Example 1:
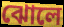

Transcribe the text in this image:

ঝোলে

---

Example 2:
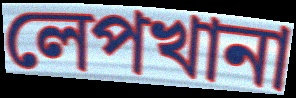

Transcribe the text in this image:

লেপখানা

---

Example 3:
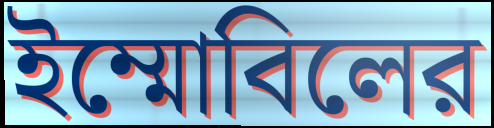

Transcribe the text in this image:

ইম্মোবিলের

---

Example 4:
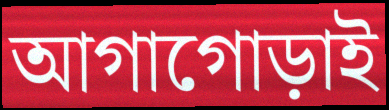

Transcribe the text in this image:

আগাগোড়াই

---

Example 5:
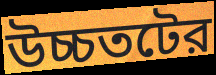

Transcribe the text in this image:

উচ্চতটের